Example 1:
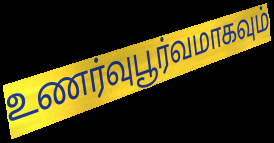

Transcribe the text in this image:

உணர்வுபூர்வமாகவும்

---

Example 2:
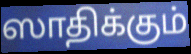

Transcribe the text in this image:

ஸாதிக்கும்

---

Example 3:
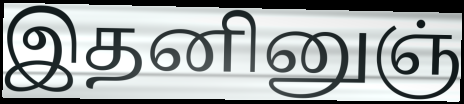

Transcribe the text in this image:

இதனினுஞ்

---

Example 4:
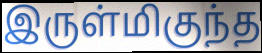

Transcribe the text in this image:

இருள்மிகுந்த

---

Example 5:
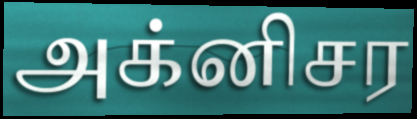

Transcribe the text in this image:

அக்னிசர